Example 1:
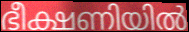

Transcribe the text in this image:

ഭീക്ഷണിയിൽ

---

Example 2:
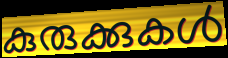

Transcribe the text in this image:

കുരുക്കുകൾ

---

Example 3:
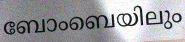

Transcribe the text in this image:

ബോംബെയിലും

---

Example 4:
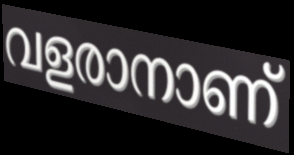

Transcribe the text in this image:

വളരാനാണ്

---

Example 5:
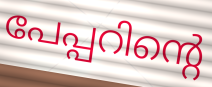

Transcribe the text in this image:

പേപ്പറിന്റെ